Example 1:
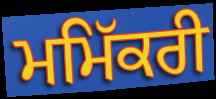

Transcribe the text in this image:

ਮਮਿੱਕਰੀ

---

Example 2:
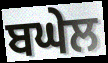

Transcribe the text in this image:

ਬਘੇਲ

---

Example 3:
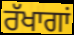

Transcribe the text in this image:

ਰੱਖਾਗਾਂ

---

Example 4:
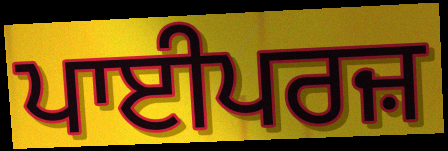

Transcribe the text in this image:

ਪਾਈਪਰਜ਼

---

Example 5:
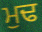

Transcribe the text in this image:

ਮੁਢ